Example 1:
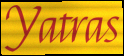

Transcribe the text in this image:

Yatras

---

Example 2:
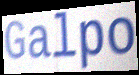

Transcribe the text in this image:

Galpo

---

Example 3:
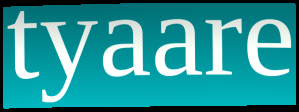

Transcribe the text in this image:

tyaare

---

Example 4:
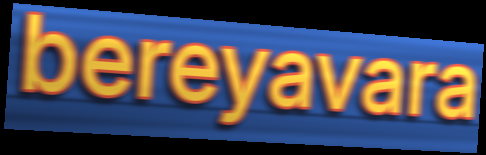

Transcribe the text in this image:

bereyavara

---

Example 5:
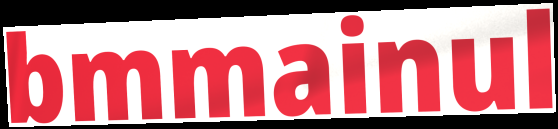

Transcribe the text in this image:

bmmainul